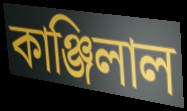
কাঞ্জিলাল